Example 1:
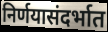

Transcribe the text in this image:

निर्णयासंदर्भात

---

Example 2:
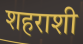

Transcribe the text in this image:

शहराशी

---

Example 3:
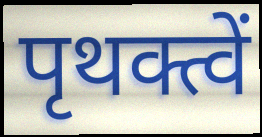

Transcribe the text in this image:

पृथक्त्वें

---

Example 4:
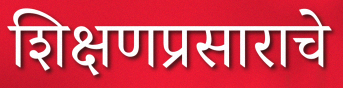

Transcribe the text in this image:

शिक्षणप्रसाराचे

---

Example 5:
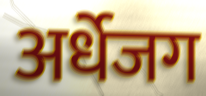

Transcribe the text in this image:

अर्धेजग